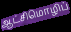
ஆட்சிமொழிப்